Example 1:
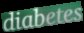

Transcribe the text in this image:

diabetes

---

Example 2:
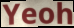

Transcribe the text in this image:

Yeoh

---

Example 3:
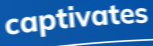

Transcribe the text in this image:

captivates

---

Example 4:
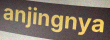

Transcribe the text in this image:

anjingnya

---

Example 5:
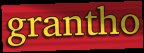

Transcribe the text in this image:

grantho